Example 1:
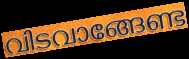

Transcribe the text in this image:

വിടവാങ്ങേണ്ട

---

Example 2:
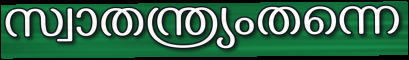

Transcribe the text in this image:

സ്വാതന്ത്ര്യംതന്നെ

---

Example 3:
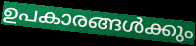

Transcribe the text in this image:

ഉപകാരങ്ങൾക്കും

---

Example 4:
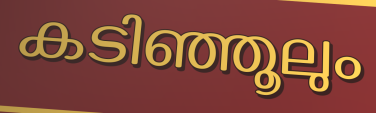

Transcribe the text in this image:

കടിഞ്ഞൂലും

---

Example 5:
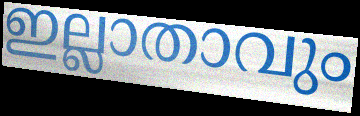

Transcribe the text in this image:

ഇല്ലാതാവും